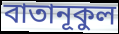
বাতানূকুল